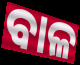
ବାଳ